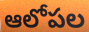
ఆలోపల